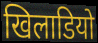
खिलाडियो